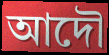
আদৌ